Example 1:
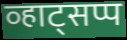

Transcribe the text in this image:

व्हाट्सप्प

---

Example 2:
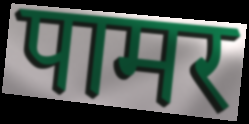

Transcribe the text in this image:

पामर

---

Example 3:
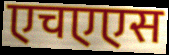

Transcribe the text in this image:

एचएएस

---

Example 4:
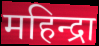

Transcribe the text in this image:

महिन्द्रा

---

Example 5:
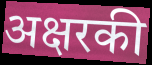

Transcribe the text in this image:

अक्षरकी